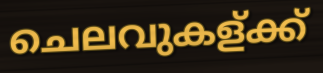
ചെലവുകള്ക്ക്